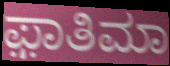
ಫ಼ಾತಿಮಾ